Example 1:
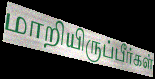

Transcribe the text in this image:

மாறியிருப்பீர்கள்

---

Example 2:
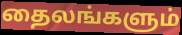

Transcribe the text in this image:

தைலங்களும்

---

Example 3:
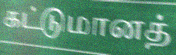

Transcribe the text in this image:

கட்டுமானத்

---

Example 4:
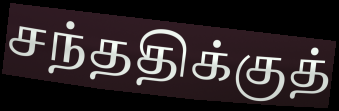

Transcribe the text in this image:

சந்ததிக்குத்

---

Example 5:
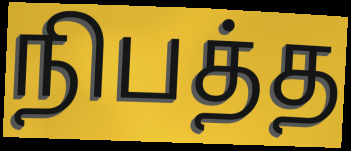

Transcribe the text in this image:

நிபத்த